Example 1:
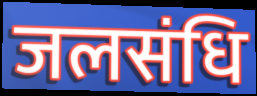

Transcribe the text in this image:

जलसंधि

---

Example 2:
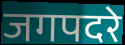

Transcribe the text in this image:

जगपदरे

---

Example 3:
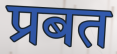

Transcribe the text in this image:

प्रबत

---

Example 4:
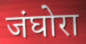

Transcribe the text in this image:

जंघोरा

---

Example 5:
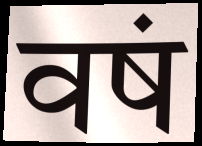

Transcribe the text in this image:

वषं